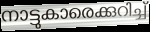
നാട്ടുകാരെക്കുറിച്ച്